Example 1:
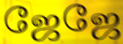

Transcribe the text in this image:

ஜேஜே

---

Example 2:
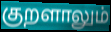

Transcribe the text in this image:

குறளாலும்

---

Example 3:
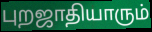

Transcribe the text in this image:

புறஜாதியாரும்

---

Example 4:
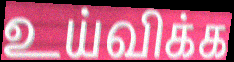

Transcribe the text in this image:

உய்விக்க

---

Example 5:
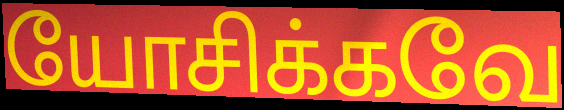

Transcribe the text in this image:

யோசிக்கவே